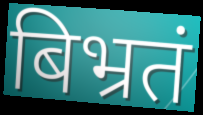
बिभ्रतं